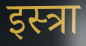
इस्त्रा